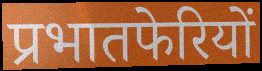
प्रभातफेरियों